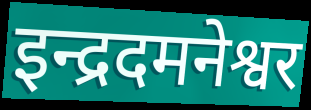
इन्द्रदमनेश्वर